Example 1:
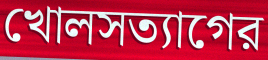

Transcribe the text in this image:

খোলসত্যাগের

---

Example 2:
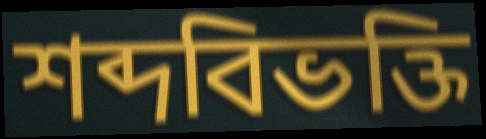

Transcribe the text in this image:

শব্দবিভক্তি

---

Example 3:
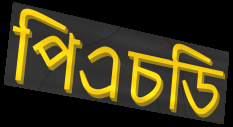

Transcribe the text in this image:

পিএচডি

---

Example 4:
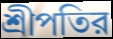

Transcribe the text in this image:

শ্রীপতির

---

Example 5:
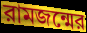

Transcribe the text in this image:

রামজন্মের